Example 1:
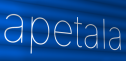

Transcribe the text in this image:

apetala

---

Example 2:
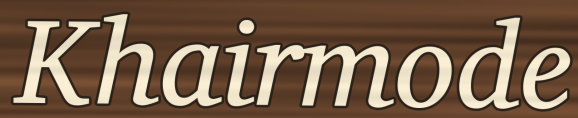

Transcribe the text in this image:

Khairmode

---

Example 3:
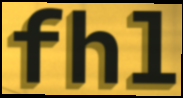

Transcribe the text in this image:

fhl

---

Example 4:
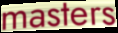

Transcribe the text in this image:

masters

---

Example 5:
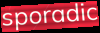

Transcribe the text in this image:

sporadic